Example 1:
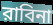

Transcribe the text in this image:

রাবিনা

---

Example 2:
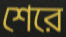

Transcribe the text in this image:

শেরে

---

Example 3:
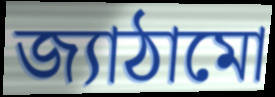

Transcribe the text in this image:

জ্যাঠামো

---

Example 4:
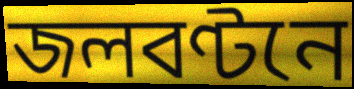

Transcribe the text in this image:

জলবণ্টনে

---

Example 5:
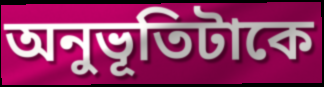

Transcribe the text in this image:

অনুভূতিটাকে